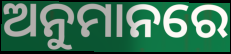
ଅନୁମାନରେ